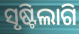
ସୃଷ୍ଟିଲାଗି